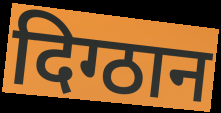
दिग्ठान